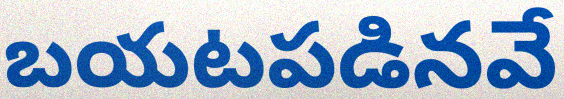
బయటపడినవే